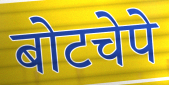
बोटचेपे